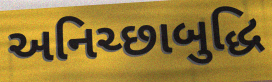
અનિચ્છાબુદ્ધિ